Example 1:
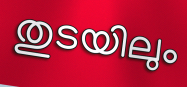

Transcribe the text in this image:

തുടയിലും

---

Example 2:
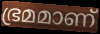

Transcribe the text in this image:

ഭ്രമമാണ്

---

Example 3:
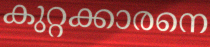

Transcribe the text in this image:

കുറ്റക്കാരനെ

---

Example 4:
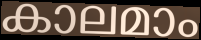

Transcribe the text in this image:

കാലമാം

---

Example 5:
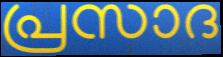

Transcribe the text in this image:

പ്രസാദ